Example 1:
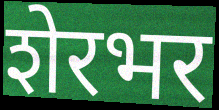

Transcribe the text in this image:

शेरभर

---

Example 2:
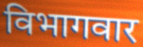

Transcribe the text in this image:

विभागवार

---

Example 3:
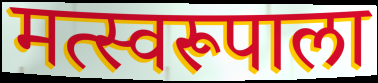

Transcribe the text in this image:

मत्स्वरूपाला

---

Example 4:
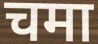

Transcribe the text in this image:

चमा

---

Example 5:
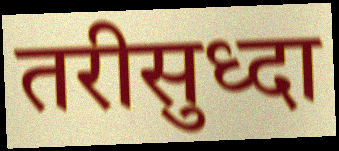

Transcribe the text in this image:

तरीसुध्दा